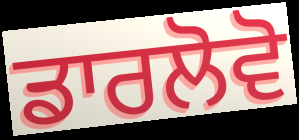
ਡਾਰਲੋਵੋ